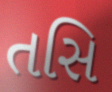
તસિ